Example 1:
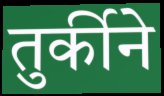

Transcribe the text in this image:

तुर्कीने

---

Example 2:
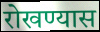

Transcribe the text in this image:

रोखण्यास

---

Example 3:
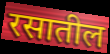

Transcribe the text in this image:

रसातील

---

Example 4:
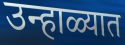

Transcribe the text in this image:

उन्हाळ्यात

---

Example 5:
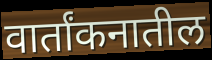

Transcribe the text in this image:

वार्तांकनातील